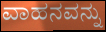
ವಾಹನವನ್ನು